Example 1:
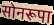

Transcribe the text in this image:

सोनरूपा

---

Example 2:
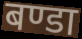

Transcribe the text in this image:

बण्डा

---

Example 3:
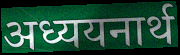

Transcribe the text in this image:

अध्ययनार्थ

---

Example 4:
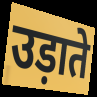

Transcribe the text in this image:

उड़ाते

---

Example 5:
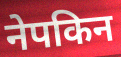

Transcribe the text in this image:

नेपकिन